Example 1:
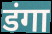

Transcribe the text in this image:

डंगा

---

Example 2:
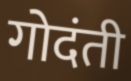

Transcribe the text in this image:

गोदंती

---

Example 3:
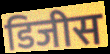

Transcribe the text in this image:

डिजीस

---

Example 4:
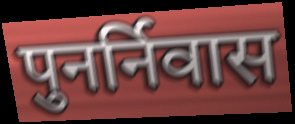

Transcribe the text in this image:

पुनर्निवास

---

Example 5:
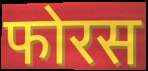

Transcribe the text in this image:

फोरस